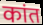
कांत